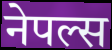
नेपल्स